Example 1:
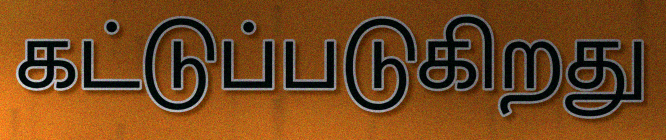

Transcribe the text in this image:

கட்டுப்படுகிறது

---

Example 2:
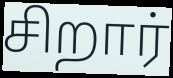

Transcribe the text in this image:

சிறார்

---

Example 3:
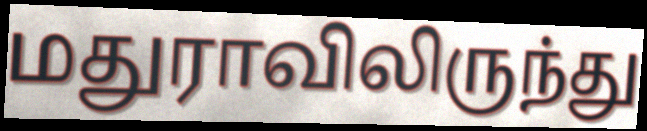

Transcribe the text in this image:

மதுராவிலிருந்து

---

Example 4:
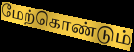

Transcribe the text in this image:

மேற்கொண்டும்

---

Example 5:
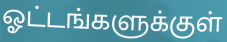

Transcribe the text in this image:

ஓட்டங்களுக்குள்